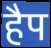
हैप